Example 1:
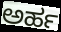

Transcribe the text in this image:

ಅರ್ಹ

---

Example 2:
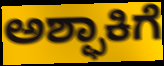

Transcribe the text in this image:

ಅಶ್ಫಾಕಿಗೆ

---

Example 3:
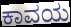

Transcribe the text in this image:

ಕಾವಯ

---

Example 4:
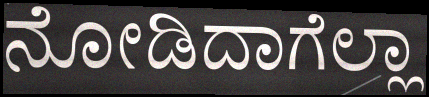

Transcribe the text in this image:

ನೋಡಿದಾಗೆಲ್ಲಾ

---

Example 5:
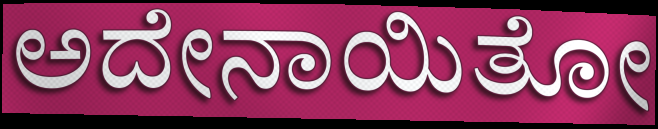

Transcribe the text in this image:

ಅದೇನಾಯಿತೋ